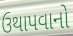
ઉથાપવાનો